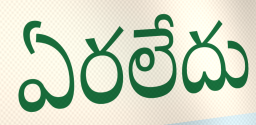
ఏరలేదు